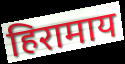
हिरामाय